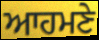
ਆਹਮਣੇ